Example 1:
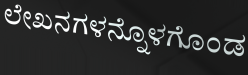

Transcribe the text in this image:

ಲೇಖನಗಳನ್ನೊಳಗೊಂಡ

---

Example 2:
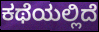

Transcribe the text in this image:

ಕಥೆಯಲ್ಲಿದೆ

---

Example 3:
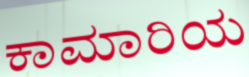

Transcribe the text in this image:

ಕಾಮಾರಿಯ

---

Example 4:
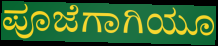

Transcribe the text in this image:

ಪೂಜೆಗಾಗಿಯೂ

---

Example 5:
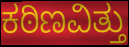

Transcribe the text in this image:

ಕಠಿಣವಿತ್ತು